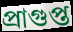
প্রাগুপ্ত